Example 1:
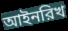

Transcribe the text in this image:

আইনরিখ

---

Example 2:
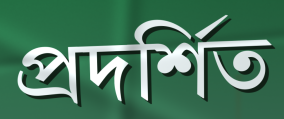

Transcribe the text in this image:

প্রদর্শিত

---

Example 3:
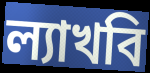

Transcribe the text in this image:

ল্যাখবি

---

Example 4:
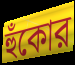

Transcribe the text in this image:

হুঁকোর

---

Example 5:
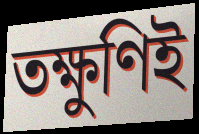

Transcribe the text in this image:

তক্ষুণিই